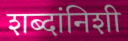
शब्दांनिशी